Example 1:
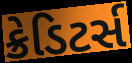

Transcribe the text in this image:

ક્રેડિટર્સ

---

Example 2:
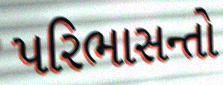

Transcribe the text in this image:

પરિભાસન્તો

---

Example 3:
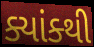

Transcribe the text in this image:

ક્યાંક્થી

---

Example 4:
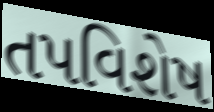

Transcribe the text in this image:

તપવિશેષ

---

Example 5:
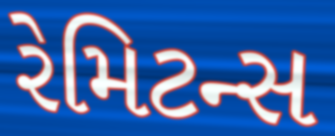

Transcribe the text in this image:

રેમિટન્સ